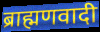
ब्राह्मणवादी